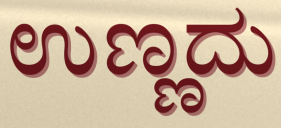
ಉಣ್ಣದು